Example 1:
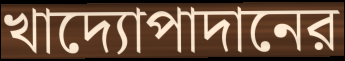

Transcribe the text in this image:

খাদ্যোপাদানের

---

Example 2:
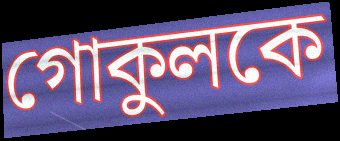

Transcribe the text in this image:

গোকুলকে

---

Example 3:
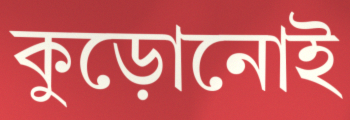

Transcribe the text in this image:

কুড়োনোই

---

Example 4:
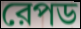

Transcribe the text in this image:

রেপড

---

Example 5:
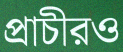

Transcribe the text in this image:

প্রাচীরও